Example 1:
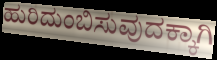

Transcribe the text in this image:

ಹುರಿದುಂಬಿಸುವುದಕ್ಕಾಗಿ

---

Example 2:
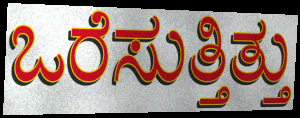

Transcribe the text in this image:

ಒರೆಸುತ್ತಿತ್ತು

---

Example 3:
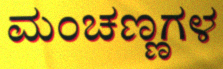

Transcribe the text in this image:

ಮಂಚಣ್ಣಗಳ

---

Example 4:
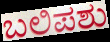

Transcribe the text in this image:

ಬಲಿಪಶು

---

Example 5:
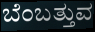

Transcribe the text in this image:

ಬೆಂಬತ್ತುವ